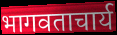
भागवताचार्य